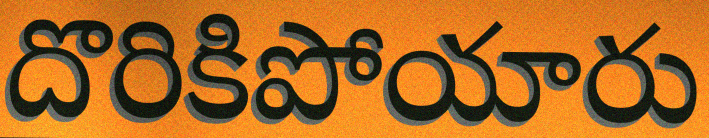
దొరికిపోయారు